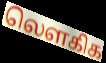
லௌகிக